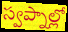
స్వప్నాల్లో